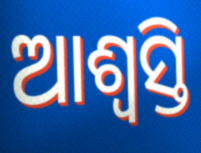
ଆଶ୍ଵସ୍ତି